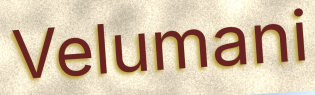
Velumani